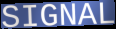
SIGNAL